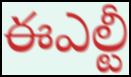
ఈఎల్టీ